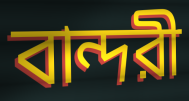
বান্দরী